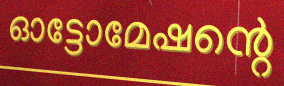
ഓട്ടോമേഷന്റെ